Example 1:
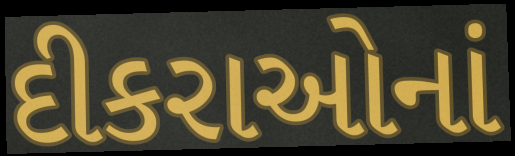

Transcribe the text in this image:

દીકરાઓનાં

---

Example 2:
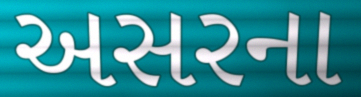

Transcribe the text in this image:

અસરના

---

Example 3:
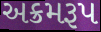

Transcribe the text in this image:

અક્રમરૂપ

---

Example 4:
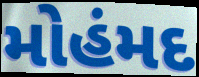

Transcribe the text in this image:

મોહંમદ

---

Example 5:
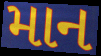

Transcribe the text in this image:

માન